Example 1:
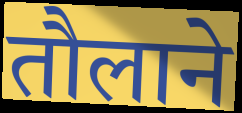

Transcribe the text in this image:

तौलाने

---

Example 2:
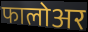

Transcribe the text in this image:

फालोअर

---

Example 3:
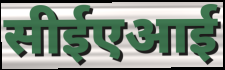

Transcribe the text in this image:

सीईएआई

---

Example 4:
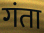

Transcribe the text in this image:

गंता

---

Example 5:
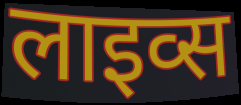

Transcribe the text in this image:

लाइव्स